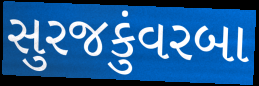
સુરજકુંવરબા